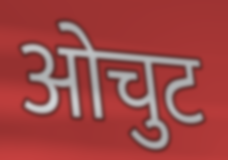
ओचुट